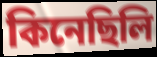
কিনেছিলি